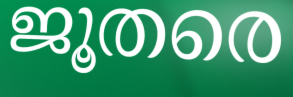
ജൂതരെ